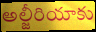
అల్జీరియాకు